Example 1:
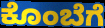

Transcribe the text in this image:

ಕೊಂಬೆಗೆ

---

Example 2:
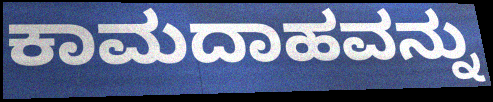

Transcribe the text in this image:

ಕಾಮದಾಹವನ್ನು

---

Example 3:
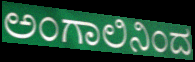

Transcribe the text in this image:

ಅಂಗಾಲಿನಿಂದ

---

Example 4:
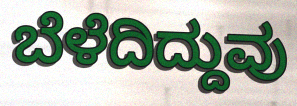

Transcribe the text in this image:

ಬೆಳೆದಿದ್ದುವು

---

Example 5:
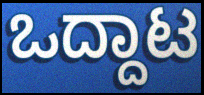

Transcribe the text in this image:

ಒದ್ದಾಟ